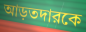
আড়তদারকে